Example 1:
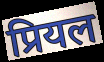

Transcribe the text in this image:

प्रियल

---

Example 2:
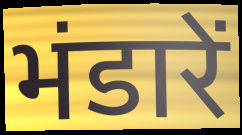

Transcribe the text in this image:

भंडारें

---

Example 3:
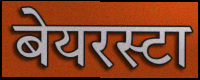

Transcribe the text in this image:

बेयरस्टा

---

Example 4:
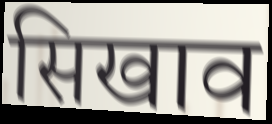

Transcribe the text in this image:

सिखाव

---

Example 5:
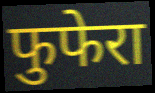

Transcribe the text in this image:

फुफेरा